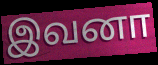
இவனா